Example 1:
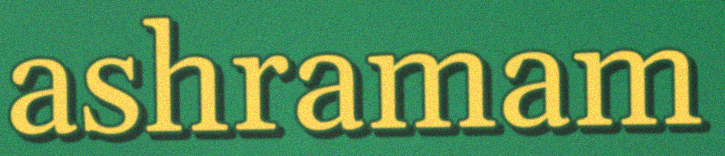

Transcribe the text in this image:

ashramam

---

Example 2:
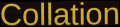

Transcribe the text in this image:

Collation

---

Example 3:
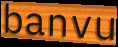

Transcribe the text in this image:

banvu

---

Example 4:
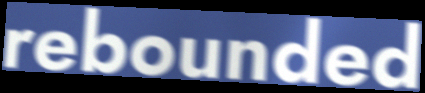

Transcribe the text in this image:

rebounded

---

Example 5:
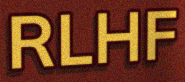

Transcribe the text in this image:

RLHF